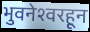
भुवनेश्वरहून